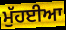
ਮੁੱਹਈਆ